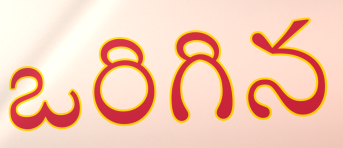
ఒరిగిన